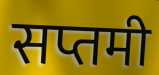
सप्तमी